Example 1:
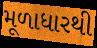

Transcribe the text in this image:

મૂળાધારથી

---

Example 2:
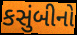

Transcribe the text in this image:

કસુંબીનો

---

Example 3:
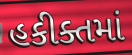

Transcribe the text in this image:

હકીક્તમાં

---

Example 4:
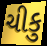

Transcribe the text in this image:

ચીકુ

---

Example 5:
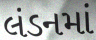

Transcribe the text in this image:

લંડનમાં